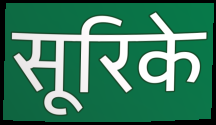
सूरिके